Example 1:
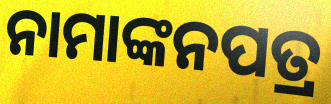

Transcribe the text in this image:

ନାମାଙ୍କନପତ୍ର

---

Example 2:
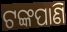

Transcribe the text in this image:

ଟଙ୍କପାଣି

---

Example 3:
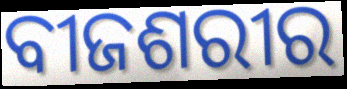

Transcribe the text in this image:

ବୀଜଶରୀର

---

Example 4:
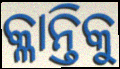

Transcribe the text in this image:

କ୍ଳାନ୍ତିକୁ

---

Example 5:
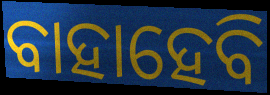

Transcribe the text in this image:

ବାହାହେବି